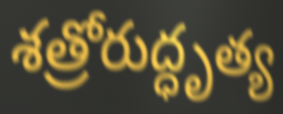
శత్రోరుద్ధృత్య